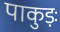
पाकुड़ः